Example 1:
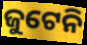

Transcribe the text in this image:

ଜୁଟେନି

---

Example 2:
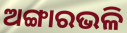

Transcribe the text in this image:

ଅଙ୍ଗାରଭଳି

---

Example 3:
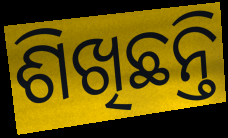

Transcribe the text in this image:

ଶିଖିଛନ୍ତି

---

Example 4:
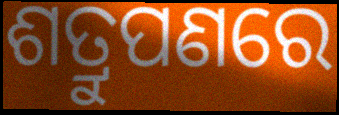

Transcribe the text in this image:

ଶତ୍ରୁପଣରେ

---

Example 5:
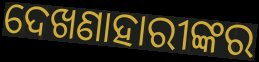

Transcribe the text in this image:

ଦେଖଣାହାରୀଙ୍କର